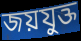
জয়যুক্ত